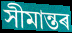
সীমান্তৰ